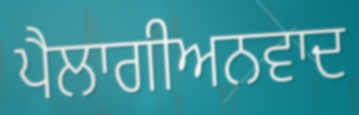
ਪੈਲਾਗੀਅਨਵਾਦ